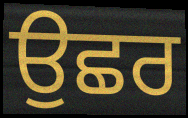
ਉਛਰ